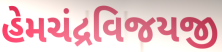
હેમચંદ્રવિજયજી